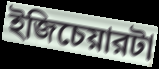
ইজিচেয়ারটা